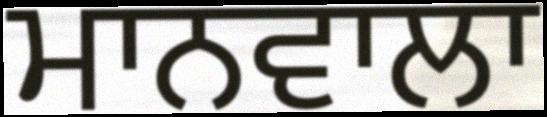
ਮਾਨਵਾਲਾ